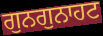
ਗੁਨਗੁਨਾਹਟ